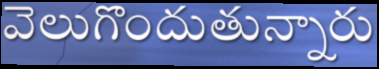
వెలుగొందుతున్నారు